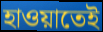
হাওয়াতেই